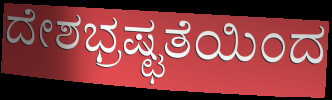
ದೇಶಭ್ರಷ್ಟತೆಯಿಂದ